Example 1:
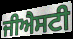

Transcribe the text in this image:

ਜੀਐਸਟੀ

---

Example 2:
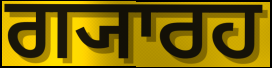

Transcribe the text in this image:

ਗ੍ਯਾਰਹ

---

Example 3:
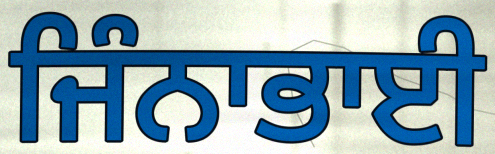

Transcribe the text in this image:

ਜਿੰਨਾਭਾਈ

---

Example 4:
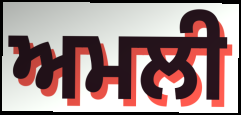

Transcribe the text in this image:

ਅਮਲੀ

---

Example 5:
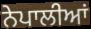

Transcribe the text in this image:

ਨੇਪਾਲੀਆਂ